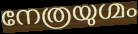
നേത്രയുഗ്മം